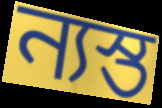
ন্যস্ত